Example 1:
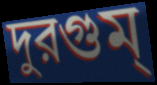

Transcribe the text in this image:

দুরগুম্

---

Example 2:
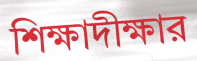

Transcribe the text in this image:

শিক্ষাদীক্ষার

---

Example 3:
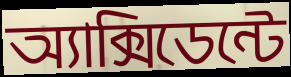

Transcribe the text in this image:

অ্যাক্সিডেন্টে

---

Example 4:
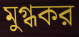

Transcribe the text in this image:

মুগ্ধকর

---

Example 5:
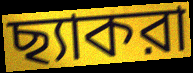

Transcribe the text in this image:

ছ্যাকরা